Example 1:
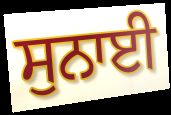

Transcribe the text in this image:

ਸੁਨਾਈ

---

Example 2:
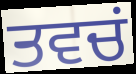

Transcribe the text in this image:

ਤਵਚਂ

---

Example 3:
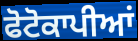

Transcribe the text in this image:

ਫੋਟੋਕਾਪੀਆਂ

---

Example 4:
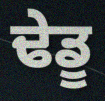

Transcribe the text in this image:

ਢੇਡੂ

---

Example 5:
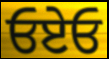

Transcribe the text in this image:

ਓਏਓ